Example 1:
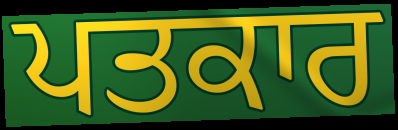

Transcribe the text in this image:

ਪਤਕਾਰ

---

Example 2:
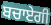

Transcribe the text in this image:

ਬਚਾਏਗੀ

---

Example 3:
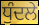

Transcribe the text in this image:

ਧੁੰਦਲੇ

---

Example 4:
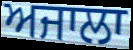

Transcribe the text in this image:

ਅਜਾਲਾ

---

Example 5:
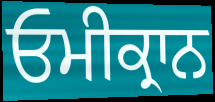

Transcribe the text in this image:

ਓਮੀਕ੍ਰਾਨ